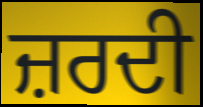
ਜ਼ਰਦੀ